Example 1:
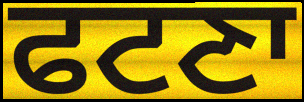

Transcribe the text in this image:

ਫਟਣਾ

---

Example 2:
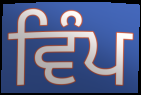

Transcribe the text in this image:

ਵਿੰਪ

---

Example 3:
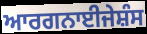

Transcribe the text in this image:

ਆਰਗਨਾਈਜੇਸ਼ੰਸ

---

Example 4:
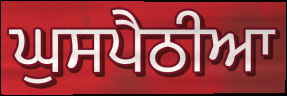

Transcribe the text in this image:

ਘੁਸਪੈਠੀਆ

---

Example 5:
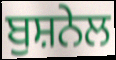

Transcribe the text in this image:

ਬੁਸ਼ਨੇਲ